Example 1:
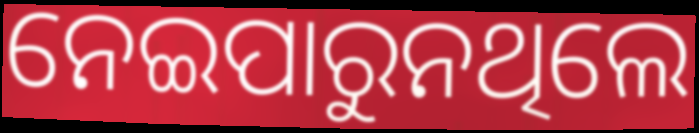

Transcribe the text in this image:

ନେଇପାରୁନଥିଲେ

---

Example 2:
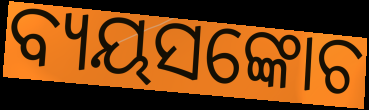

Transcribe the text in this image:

ବ୍ୟୟସଙ୍କୋଚ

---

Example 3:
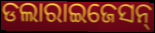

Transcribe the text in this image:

ଡଲାରାଇଜେସନ୍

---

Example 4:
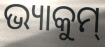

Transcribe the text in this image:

ଭ୍ୟାକୁମ୍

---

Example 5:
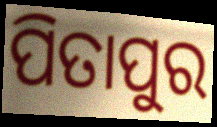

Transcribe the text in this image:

ପିତାପୁର